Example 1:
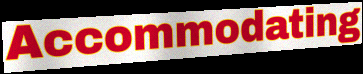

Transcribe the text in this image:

Accommodating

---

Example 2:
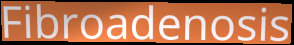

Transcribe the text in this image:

Fibroadenosis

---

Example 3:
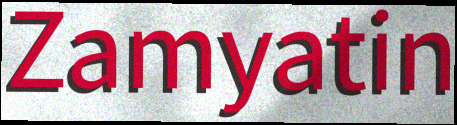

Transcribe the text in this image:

Zamyatin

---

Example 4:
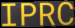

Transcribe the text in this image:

IPRC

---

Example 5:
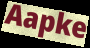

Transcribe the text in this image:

Aapke